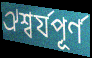
ঐশ্বর্যপূর্ণ